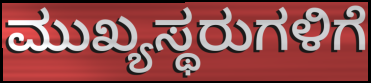
ಮುಖ್ಯಸ್ಥರುಗಳಿಗೆ